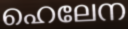
ഹെലേന